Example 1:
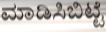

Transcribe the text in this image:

ಮಾಡಿಸಿಬಿಟ್ಟೆ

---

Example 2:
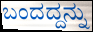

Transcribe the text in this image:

ಬಂದದ್ದನ್ನು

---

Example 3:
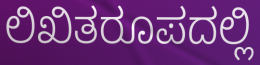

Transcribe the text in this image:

ಲಿಖಿತರೂಪದಲ್ಲಿ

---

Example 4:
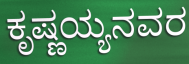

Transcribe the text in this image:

ಕೃಷ್ಣಯ್ಯನವರ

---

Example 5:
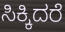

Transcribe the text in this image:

ಸಿಕ್ಕಿದರೆ